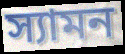
স্যামন